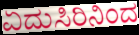
ಏದುಸಿರಿನಿಂದ